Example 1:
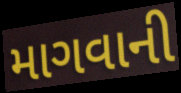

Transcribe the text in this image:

માગવાની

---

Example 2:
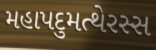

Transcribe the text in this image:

મહાપદુમત્થેરસ્સ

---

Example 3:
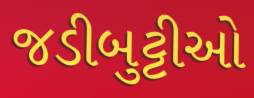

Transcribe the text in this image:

જડીબુટ્ટીઓ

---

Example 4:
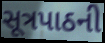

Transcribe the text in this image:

સૂત્રપાઠની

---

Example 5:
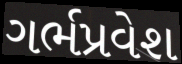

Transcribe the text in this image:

ગર્ભપ્રવેશ